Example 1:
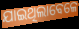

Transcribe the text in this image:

ଯାଇଥିଲାବେଳେ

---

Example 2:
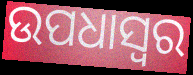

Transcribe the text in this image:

ଉପଧାସ୍ୱର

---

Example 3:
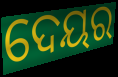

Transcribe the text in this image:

ଦେୟର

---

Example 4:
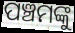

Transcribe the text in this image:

ପଞ୍ଚମଙ୍କୁ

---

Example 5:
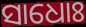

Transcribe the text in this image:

ସାଧୋଃ